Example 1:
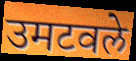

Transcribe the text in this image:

उमटवले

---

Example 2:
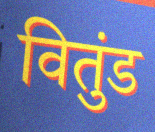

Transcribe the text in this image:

वितुंड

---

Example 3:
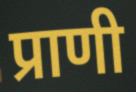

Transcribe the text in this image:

प्राणी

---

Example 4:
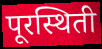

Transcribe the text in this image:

पूरस्थिती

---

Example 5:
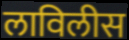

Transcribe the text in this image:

लाविलीस